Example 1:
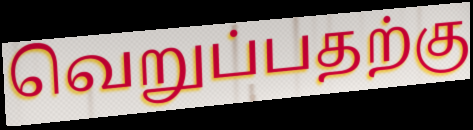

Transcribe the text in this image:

வெறுப்பதற்கு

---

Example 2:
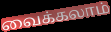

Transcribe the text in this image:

வைக்கலாம்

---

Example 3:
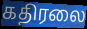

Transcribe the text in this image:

கதிரலை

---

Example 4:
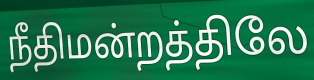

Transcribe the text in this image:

நீதிமன்றத்திலே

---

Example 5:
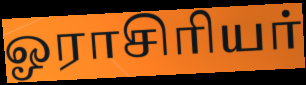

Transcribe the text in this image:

ஓராசிரியர்